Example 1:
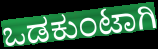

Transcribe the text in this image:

ಒಡಕುಂಟಾಗಿ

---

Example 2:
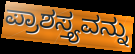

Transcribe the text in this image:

ಪ್ರಾಶಸ್ತ್ಯವನ್ನು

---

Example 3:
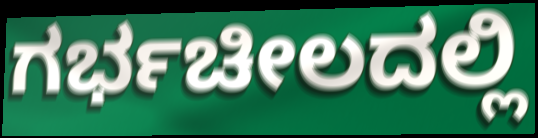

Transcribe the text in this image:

ಗರ್ಭಚೀಲದಲ್ಲಿ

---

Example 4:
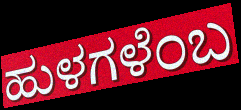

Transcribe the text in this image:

ಹುಳಗಳೆಂಬ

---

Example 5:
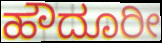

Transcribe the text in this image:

ಹೌದೂರೀ